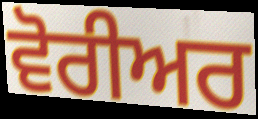
ਵੋਰੀਅਰ